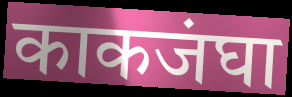
काकजंघा